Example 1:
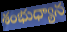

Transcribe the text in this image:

శంభుధ్యాన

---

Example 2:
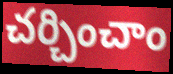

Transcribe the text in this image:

చర్చించాం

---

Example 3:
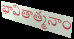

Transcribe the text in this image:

భావితాత్మనాం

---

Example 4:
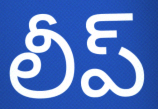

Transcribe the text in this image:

లీప్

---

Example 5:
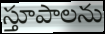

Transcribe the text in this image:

స్తూపాలను